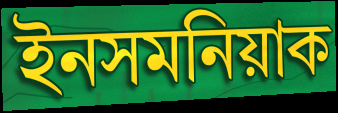
ইনসমনিয়াক